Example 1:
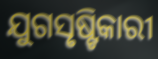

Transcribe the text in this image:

ଯୁଗସୃଷ୍ଟିକାରୀ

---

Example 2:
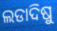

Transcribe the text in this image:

ଲଡାଦିଷୁ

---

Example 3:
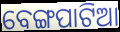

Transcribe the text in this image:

ବେଙ୍ଗପାଟିଆ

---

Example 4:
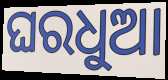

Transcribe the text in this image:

ଘରଧୁଆ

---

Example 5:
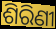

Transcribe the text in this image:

ଶିରିଣୀ